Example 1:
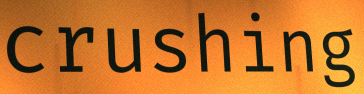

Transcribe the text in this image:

crushing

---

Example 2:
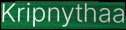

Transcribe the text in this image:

Kripnythaa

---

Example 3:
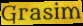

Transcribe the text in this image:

Grasim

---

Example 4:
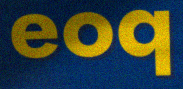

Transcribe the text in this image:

eoq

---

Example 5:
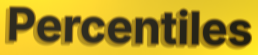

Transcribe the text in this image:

Percentiles